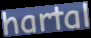
hartal